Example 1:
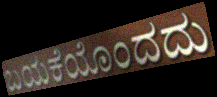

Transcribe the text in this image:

ಬಯಕೆಯೊಂದದು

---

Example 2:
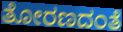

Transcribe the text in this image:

ತೋರಣದಂತೆ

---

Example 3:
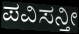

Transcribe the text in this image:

ಪವಿಸನ್ತೀ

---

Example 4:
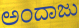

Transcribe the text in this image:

ಅಂದಾಜು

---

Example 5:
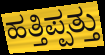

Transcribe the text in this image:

ಹತ್ತಿಪ್ಪತ್ತು